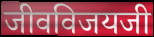
जीवविजयजी